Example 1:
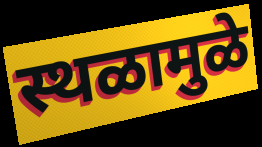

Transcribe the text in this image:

स्थळामुळे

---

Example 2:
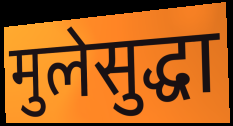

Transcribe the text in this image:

मुलेसुद्धा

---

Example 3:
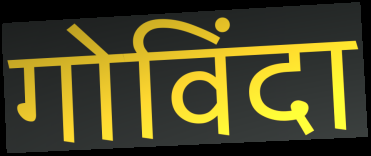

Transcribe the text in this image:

गोविंदा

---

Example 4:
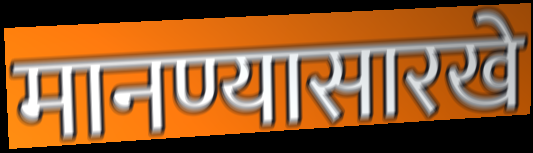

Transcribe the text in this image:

मानण्यासारखे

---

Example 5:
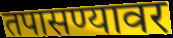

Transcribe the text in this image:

तपासण्यावर